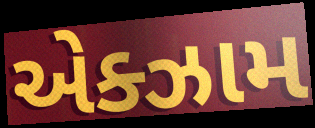
એક્ઝામ